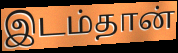
இடம்தான்